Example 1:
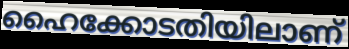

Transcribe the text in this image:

ഹൈക്കോടതിയിലാണ്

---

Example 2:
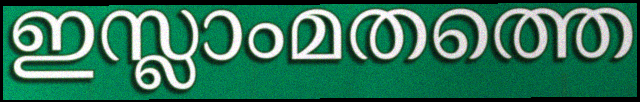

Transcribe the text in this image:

ഇസ്ലാംമതത്തെ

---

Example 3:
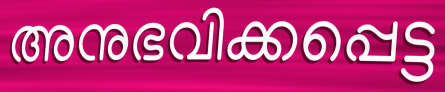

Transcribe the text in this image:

അനുഭവിക്കപ്പെട്ട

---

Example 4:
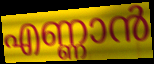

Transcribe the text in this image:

എണ്ണാൻ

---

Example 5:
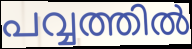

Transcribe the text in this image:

പവ്വത്തിൽ